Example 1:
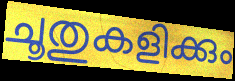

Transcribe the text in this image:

ചൂതുകളിക്കും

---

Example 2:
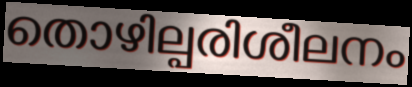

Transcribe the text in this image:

തൊഴില്പരിശീലനം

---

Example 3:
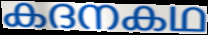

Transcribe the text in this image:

കദനകഥ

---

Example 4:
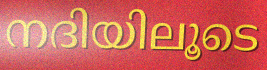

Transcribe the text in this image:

നദിയിലൂടെ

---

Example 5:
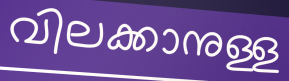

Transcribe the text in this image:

വിലക്കാനുള്ള